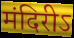
मंदिरीऽ